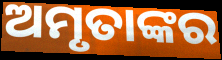
ଅମୃତାଙ୍କର